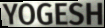
YOGESH